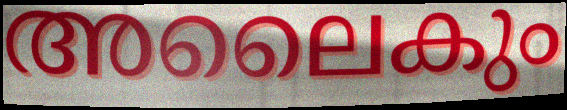
അലൈകും